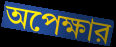
অপেক্ষার